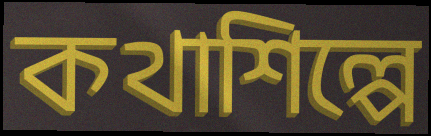
কথাশিল্পে